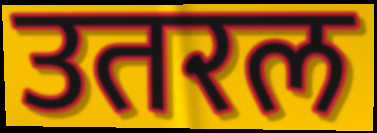
उतरल